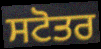
ਸਟੋਤਰ